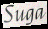
Suga